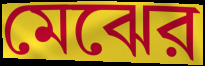
মেঝের